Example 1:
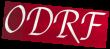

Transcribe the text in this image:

ODRF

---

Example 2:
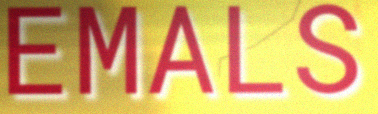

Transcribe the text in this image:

EMALS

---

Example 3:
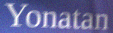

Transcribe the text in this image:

Yonatan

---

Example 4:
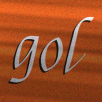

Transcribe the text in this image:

gol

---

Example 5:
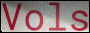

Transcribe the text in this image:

Vols